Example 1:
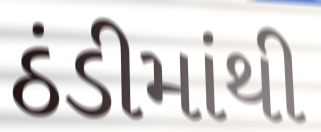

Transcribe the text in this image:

ઠંડીમાંથી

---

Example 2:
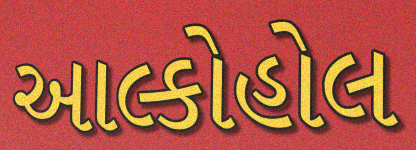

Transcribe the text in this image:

આલ્કોહોલ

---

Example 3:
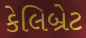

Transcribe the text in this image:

કેલિબ્રેટ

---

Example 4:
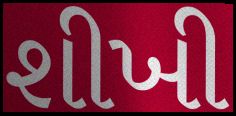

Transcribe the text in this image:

શીખી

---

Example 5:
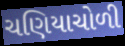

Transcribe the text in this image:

ચણિયાચોળી